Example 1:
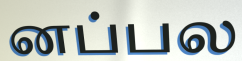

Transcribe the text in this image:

னப்பல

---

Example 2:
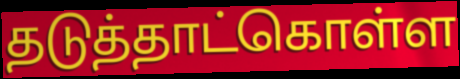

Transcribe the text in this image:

தடுத்தாட்கொள்ள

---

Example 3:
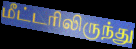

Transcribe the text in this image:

மீட்டரிலிருந்து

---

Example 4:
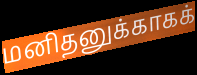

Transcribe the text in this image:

மனிதனுக்காகக்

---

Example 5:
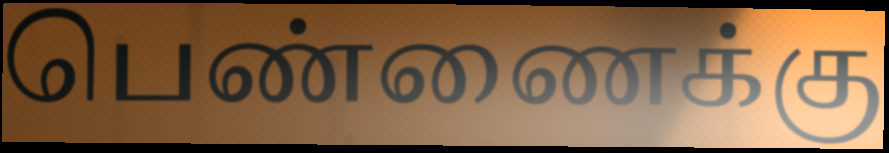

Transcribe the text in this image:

பெண்ணைக்கு